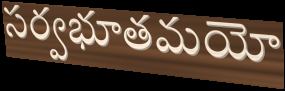
సర్వభూతమయో